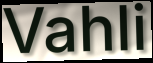
Vahli